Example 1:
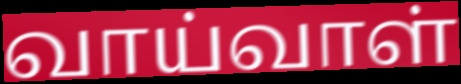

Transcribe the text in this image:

வாய்வாள்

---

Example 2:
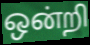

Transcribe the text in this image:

ஒன்றி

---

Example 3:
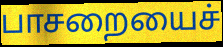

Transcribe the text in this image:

பாசறையைச்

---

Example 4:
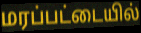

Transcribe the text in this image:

மரப்பட்டையில்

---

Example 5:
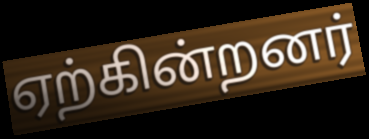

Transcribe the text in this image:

ஏற்கின்றனர்